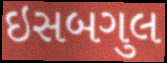
ઇસબગુલ